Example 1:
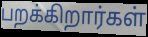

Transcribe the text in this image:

பறக்கிறார்கள்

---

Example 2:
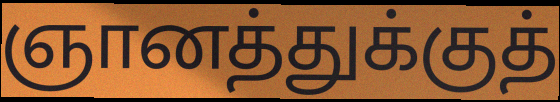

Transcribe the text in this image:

ஞானத்துக்குத்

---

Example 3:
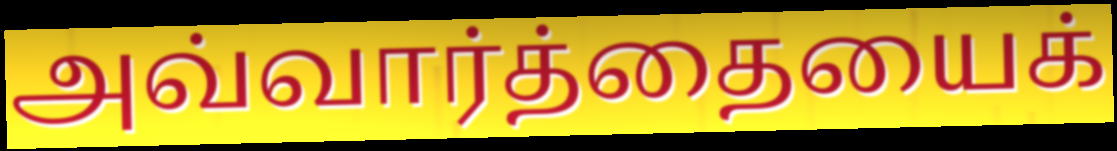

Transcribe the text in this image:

அவ்வார்த்தையைக்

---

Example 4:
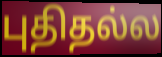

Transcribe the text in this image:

புதிதல்ல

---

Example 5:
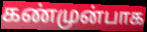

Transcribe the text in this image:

கண்முன்பாக